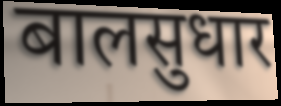
बालसुधार